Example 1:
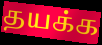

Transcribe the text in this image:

தயக்க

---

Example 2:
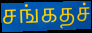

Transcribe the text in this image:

சங்கதச்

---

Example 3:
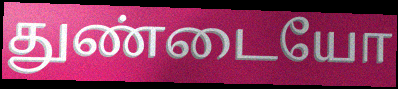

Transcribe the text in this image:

துண்டையோ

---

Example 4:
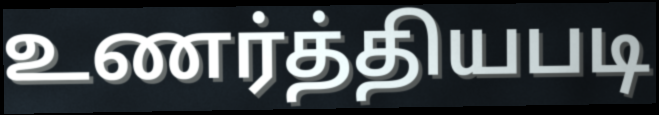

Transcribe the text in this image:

உணர்த்தியபடி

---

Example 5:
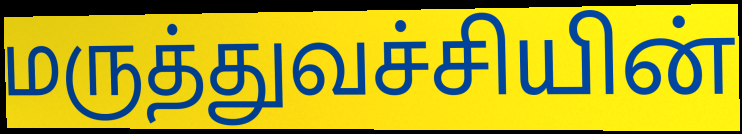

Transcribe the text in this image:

மருத்துவச்சியின்